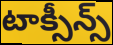
టాక్సీన్స్